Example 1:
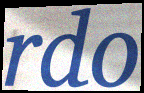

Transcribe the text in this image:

rdo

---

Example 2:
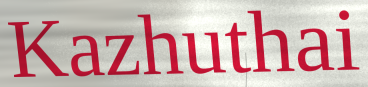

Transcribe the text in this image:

Kazhuthai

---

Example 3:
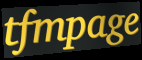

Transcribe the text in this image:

tfmpage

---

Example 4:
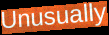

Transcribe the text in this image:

Unusually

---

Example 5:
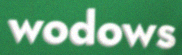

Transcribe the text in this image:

wodows